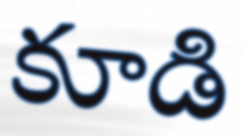
కూడి